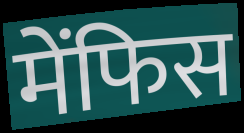
मेंफिस